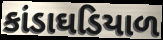
કાંડાઘડિયાળ